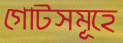
গোটসমূহে